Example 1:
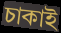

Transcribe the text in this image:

চাকাই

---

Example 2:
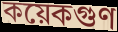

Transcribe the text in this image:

কয়েকগুণ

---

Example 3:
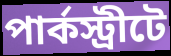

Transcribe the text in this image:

পার্কস্ট্রীটে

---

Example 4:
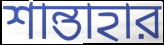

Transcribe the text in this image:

শান্তাহার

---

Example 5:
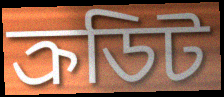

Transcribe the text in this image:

ক্রডিট